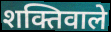
शक्तिवाले